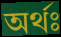
অর্থঃ